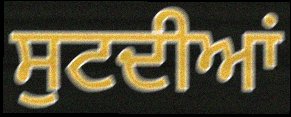
ਸੁਟਦੀਆਂ